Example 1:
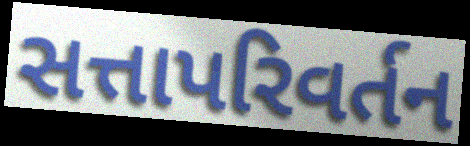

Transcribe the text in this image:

સત્તાપરિવર્તન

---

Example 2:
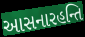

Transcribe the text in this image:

આસનારહન્તિ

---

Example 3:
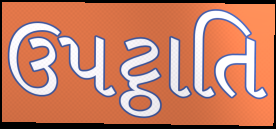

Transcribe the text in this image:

ઉપટ્ઠાતિ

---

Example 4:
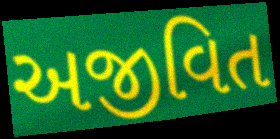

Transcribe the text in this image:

અજીવિત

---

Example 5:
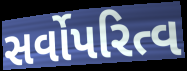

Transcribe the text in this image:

સર્વોપરિત્વ